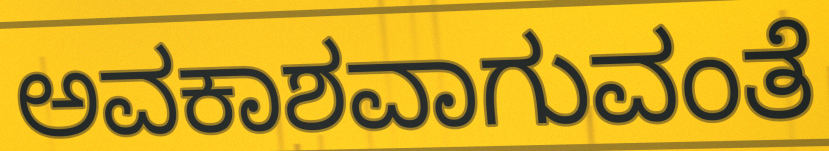
ಅವಕಾಶವಾಗುವಂತೆ